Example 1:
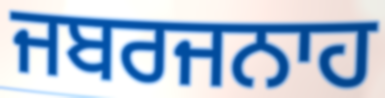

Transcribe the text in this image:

ਜਬਰਜਨਾਹ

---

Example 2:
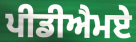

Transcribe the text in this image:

ਪੀਡੀਐਮਏ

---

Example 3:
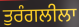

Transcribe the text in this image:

ਤੁਰੰਗਲੀਲਾ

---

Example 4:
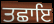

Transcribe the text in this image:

ਤਛਾਇ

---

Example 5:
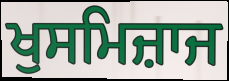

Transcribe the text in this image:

ਖੁਸਮਿਜ਼ਾਜ